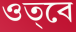
ওত্‌বে